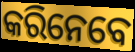
କରିନେବେ